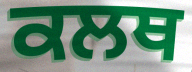
ਕਲਥ